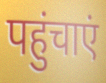
पहुंचाएं